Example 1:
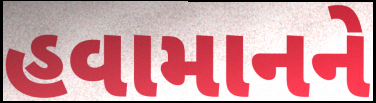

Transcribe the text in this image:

હવામાનને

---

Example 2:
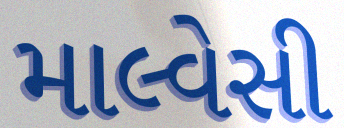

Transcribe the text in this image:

માલ્વેસી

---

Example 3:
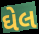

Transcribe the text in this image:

ઘેલ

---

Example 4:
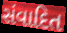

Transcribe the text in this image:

સંવાદિત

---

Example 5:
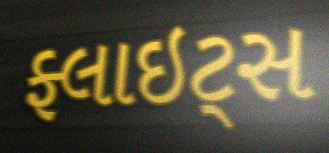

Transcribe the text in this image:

ફ્લાઇટ્સ